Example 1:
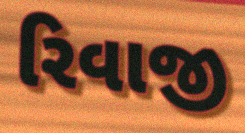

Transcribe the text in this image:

રિવાજી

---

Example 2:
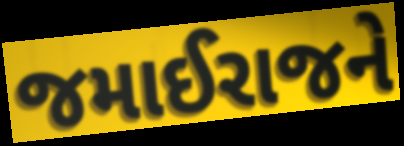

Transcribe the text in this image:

જમાઈરાજને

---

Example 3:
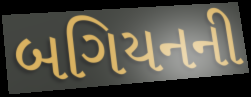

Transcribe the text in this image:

બગિયનની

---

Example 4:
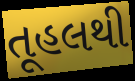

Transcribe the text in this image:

તૂહલથી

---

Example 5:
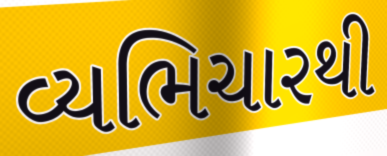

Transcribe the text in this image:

વ્યભિચારથી